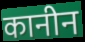
कानीन